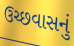
ઉચ્છવાસનું